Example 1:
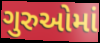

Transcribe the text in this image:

ગુરુઓમાં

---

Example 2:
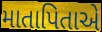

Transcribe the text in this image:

માતાપિતાએ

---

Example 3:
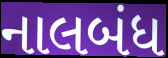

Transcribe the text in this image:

નાલબંધ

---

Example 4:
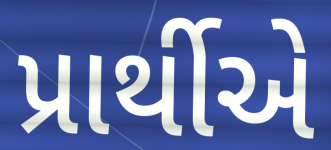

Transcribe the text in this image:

પ્રાર્થીએ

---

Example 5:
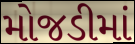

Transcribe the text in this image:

મોજડીમાં